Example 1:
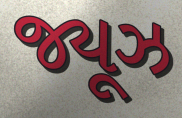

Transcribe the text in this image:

જ્યૂઝ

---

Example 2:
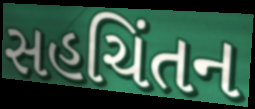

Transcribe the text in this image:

સહચિંતન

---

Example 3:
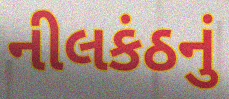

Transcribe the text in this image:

નીલકંઠનું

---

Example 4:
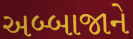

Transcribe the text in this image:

અબ્બાજાને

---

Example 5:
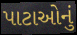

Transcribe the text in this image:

પાટાઓનું